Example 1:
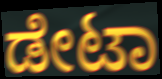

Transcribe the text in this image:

ಡೇಟಾ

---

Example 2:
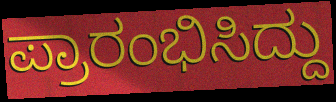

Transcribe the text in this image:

ಪ್ರಾರಂಭಿಸಿದ್ದು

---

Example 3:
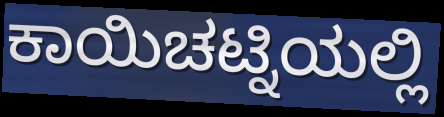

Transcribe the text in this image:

ಕಾಯಿಚಟ್ನಿಯಲ್ಲಿ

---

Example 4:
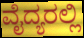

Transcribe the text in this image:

ವೈದ್ಯರಲ್ಲಿ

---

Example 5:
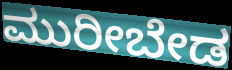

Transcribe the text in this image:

ಮುರೀಬೇಡ